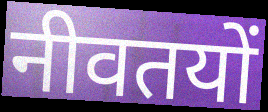
नीवतयों